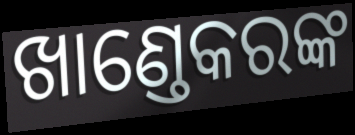
ଖାଣ୍ଡେକରଙ୍କ